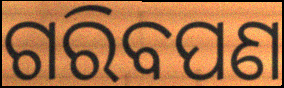
ଗରିବପଣ